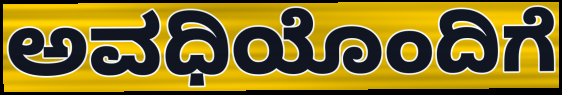
ಅವಧಿಯೊಂದಿಗೆ